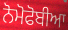
ਨੋਮੋਫੋਬੀਆ